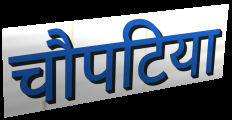
चौपटिया